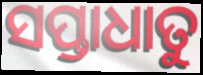
ସପ୍ତାଧାତୁ